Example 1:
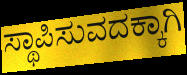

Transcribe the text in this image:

ಸ್ಥಾಪಿಸುವದಕ್ಕಾಗಿ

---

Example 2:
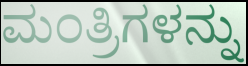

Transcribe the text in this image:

ಮಂತ್ರಿಗಳನ್ನು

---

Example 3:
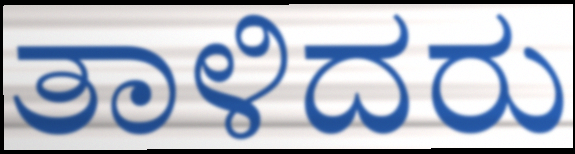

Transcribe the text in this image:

ತಾಳಿದರು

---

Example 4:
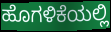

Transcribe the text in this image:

ಹೊಗಳಿಕೆಯಲ್ಲಿ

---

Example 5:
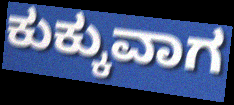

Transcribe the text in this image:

ಕುಕ್ಕುವಾಗ